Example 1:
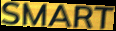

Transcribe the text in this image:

SMART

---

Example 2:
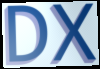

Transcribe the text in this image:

DX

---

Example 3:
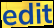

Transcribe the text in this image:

edit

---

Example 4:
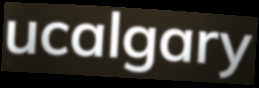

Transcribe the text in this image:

ucalgary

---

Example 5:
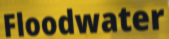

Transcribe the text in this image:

Floodwater